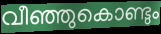
വീഞ്ഞുകൊണ്ടും